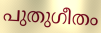
പുതുഗീതം